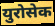
युरोसेक